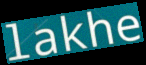
lakhe